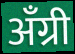
अँग्री